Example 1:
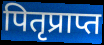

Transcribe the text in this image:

पितृप्राप्त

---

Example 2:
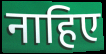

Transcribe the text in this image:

नाहिए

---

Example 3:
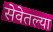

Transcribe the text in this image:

सेवेतल्या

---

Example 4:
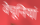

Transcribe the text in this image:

वेचूनियां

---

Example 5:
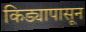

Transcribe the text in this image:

किड्यापासून